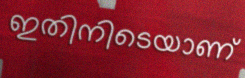
ഇതിനിടെയാണ്